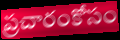
ప్రచారంకోసం